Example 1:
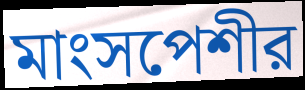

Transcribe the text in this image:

মাংসপেশীর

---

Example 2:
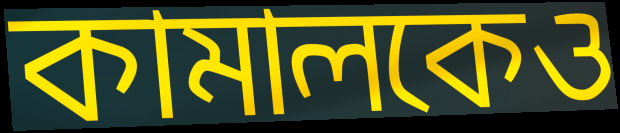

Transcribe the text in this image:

কামালকেও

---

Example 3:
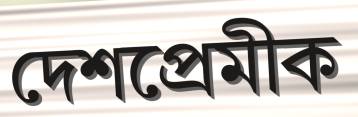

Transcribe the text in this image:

দেশপ্রেমীক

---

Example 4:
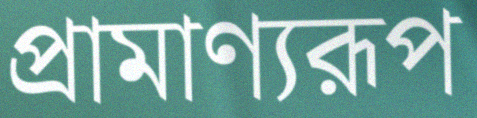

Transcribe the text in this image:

প্রামাণ্যরূপ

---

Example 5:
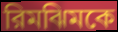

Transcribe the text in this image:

রিমঝিমকে